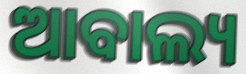
ଆବାଲ୍ୟ